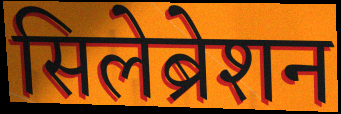
सिलेब्रेशन